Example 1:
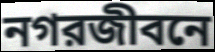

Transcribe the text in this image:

নগরজীবনে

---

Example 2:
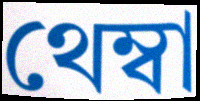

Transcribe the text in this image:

থেম্বা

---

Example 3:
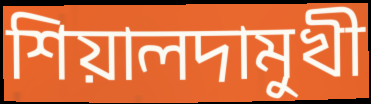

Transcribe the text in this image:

শিয়ালদামুখী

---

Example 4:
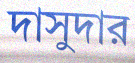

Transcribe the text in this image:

দাসুদার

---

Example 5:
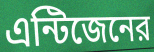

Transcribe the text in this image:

এন্টিজেনের